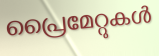
പ്രൈമേറ്റുകൾ